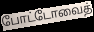
போட்டோவைத்